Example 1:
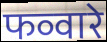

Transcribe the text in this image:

फव्‍वारे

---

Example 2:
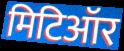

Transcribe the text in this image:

मिटिऑर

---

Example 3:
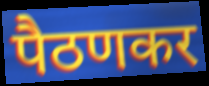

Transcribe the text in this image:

पैठणकर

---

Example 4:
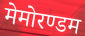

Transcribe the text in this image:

मेमोरण्डम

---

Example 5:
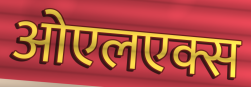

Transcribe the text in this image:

ओएलएक्स